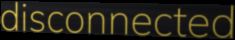
disconnected